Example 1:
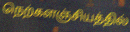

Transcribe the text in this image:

நெற்களஞ்சியத்தில்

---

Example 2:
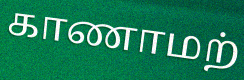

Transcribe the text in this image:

காணாமற்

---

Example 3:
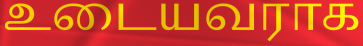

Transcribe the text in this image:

உடையவராக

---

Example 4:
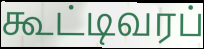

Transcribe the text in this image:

கூட்டிவரப்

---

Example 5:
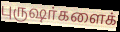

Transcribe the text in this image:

புருஷர்களைக்